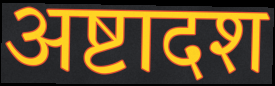
अष्टादश